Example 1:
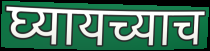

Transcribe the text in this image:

घ्यायच्याच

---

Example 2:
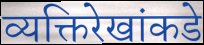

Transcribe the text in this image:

व्यक्तिरेखांकडे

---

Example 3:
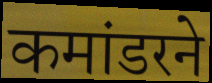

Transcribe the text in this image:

कमांडरने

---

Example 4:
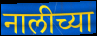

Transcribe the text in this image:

नालीच्या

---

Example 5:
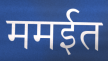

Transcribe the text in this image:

ममईत